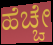
ಹೆಚ್ಚೇ